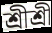
শ্ৰীশ্ৰী